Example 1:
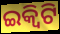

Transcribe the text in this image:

ଇକ୍ବିଟି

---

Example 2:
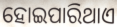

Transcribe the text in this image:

ହୋଇପାରିଥାଏ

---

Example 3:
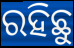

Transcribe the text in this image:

ରହିଛୁ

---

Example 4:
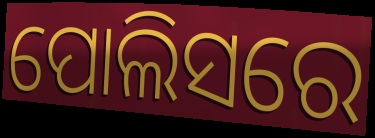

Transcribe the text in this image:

ପୋଲିସରେ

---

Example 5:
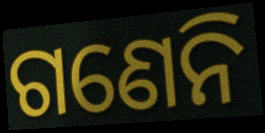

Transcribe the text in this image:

ଗଣେନି